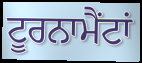
ਟੂਰਨਾਮੈਂਟਾਂ